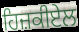
ਹਿਜ਼ਕੀਏਲ